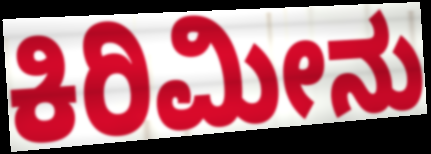
ಕಿರಿಮೀನು